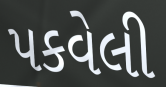
પકવેલી